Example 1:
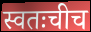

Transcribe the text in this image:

स्वतःचीच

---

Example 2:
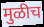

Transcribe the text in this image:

मुळीच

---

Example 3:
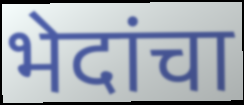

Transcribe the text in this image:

भेदांचा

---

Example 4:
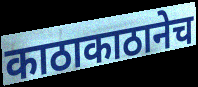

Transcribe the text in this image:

काठाकाठानेच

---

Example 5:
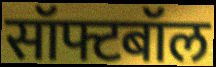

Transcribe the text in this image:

सॉफ्टबॉल